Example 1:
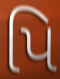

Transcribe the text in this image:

પિ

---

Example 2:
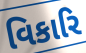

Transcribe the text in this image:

વિકારિ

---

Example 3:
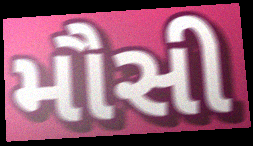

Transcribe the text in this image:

મૌસી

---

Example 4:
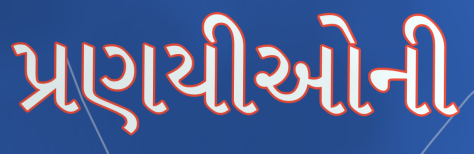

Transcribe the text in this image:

પ્રણયીઓની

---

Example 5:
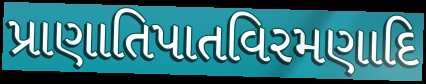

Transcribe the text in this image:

પ્રાણાતિપાતવિરમણાદિ